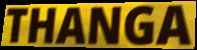
THANGA